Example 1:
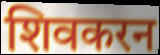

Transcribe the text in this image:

शिवकरन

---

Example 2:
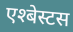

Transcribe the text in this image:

एश्बेस्टस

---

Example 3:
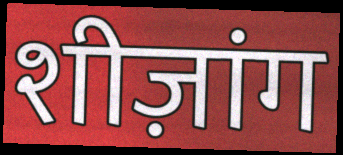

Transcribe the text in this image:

शीज़ांग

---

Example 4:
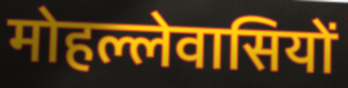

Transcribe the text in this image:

मोहल्लेवासियों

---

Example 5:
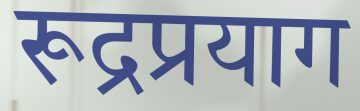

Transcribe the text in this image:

रूद्रप्रयाग